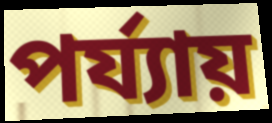
পৰ্য্যায়